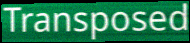
Transposed